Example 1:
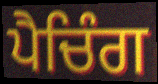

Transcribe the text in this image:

ਪੈਚਿੰਗ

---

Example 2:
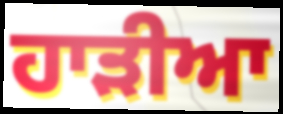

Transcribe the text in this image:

ਹਾੜੀਆ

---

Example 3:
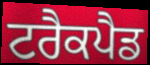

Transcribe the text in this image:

ਟਰੈਕਪੈਡ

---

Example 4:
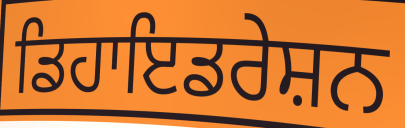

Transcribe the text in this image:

ਡਿਹਾਇਡਰੇਸ਼ਨ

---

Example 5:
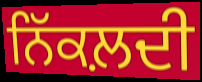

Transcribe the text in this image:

ਨਿੱਕਲ਼ਦੀ